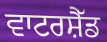
ਵਾਟਰਸ਼ੈੱਡ